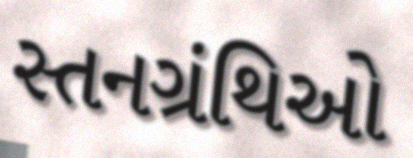
સ્તનગ્રંથિઓ